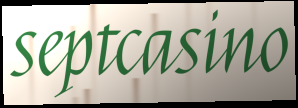
septcasino